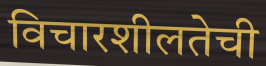
विचारशीलतेची